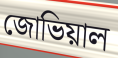
জোভিয়াল